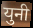
युनी